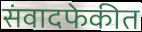
संवादफेकीत